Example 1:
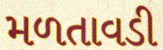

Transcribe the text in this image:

મળતાવડી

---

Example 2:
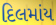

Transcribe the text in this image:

દિલમાંય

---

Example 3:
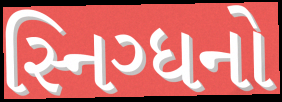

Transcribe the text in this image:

સ્નિગ્ધનો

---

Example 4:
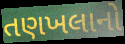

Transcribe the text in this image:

તણખલાનો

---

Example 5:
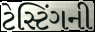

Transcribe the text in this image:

ટેસ્ટિંગની